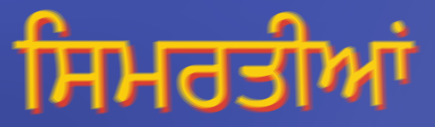
ਸਿਮਰਤੀਆਂ